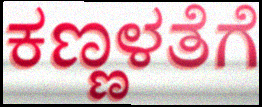
ಕಣ್ಣಳತೆಗೆ